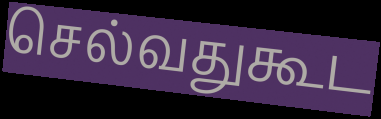
செல்வதுகூட